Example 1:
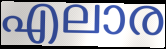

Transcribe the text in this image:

എലാര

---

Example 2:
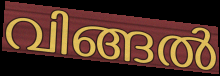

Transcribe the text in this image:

വിങ്ങൽ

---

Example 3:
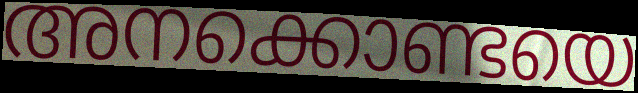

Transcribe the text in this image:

അനക്കൊണ്ടയെ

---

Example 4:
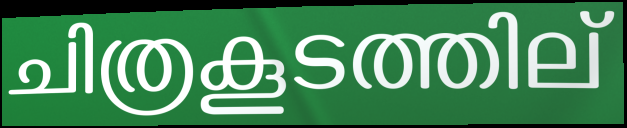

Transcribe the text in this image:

ചിത്രകൂടത്തില്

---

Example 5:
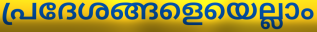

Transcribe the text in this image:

പ്രദേശങ്ങളെയെല്ലാം